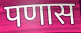
पणास